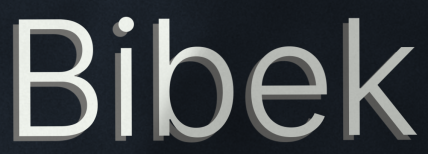
Bibek